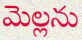
మెల్లను